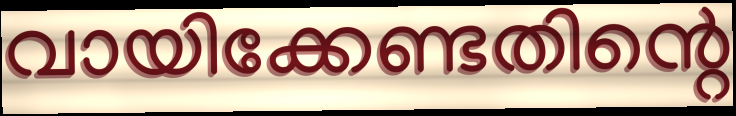
വായിക്കേണ്ടതിന്റെ